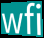
wfi